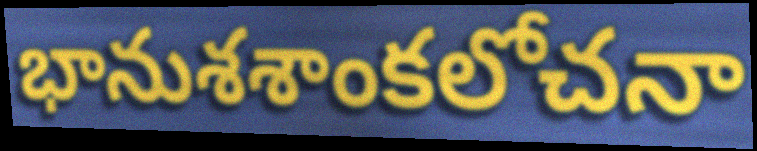
భానుశశాంకలోచనా